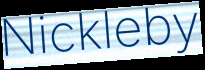
Nickleby